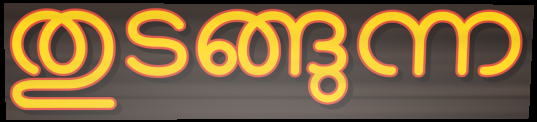
തുടങ്ങുന്ന